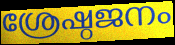
ശ്രേഷ്ഠജനം